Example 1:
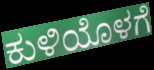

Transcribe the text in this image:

ಕುಳಿಯೊಳಗೆ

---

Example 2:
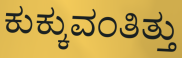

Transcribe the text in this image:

ಕುಕ್ಕುವಂತಿತ್ತು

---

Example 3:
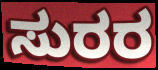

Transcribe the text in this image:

ಸುರರ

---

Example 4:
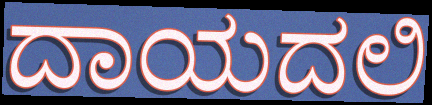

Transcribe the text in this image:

ದಾಯದಲಿ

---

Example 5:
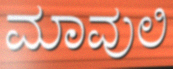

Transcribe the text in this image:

ಮಾವುಲಿ